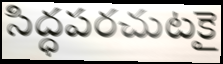
సిద్ధపరచుటకై